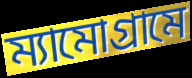
ম্যামোগ্রামে